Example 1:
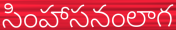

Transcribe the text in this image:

సింహాసనంలాగ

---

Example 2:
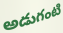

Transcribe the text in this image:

అడుగంటి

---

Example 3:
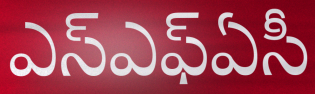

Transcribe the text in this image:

ఎస్ఎఫ్ఏసీ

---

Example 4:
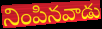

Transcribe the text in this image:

నింపినవాడు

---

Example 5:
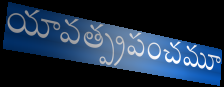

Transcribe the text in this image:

యావత్ప్రపంచమూ